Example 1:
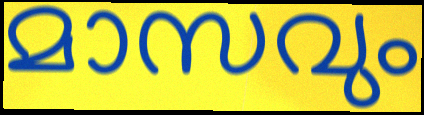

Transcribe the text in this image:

മാസവും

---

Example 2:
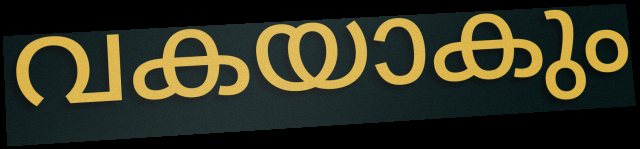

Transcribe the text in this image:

വകയാകും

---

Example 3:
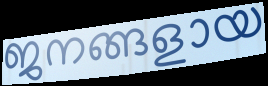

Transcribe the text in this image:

ജനങ്ങളായ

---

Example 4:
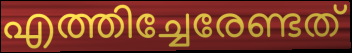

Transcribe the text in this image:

എത്തിച്ചേരേണ്ടത്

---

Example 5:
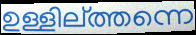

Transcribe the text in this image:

ഉള്ളില്ത്തന്നെ